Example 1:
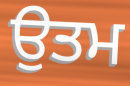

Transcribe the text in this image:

ਉਤਮ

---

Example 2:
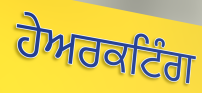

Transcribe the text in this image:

ਹੇਅਰਕਟਿੰਗ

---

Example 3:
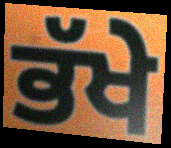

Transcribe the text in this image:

ਭੱਖੇ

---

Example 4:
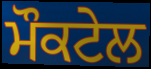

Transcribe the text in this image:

ਮੌਕਟੇਲ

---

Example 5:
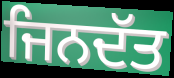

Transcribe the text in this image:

ਜਿਨਦੱਤ